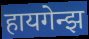
हायगेन्झ